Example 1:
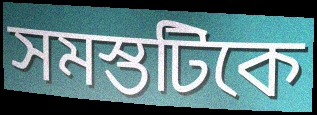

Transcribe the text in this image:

সমস্তটিকে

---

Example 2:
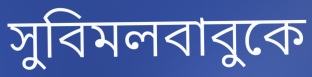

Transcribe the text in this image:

সুবিমলবাবুকে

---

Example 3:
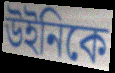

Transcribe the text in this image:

উইনিকে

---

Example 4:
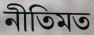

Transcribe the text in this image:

নীতিমত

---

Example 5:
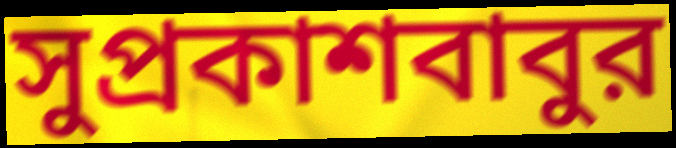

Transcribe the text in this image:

সুপ্রকাশবাবুর